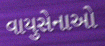
વાયુસેનાઓ